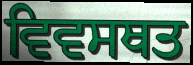
ਵਿਵਸਥਤ